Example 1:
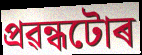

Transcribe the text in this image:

প্ৰৱন্ধটোৰ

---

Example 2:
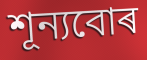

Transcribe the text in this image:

শূন্যবোৰ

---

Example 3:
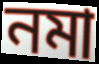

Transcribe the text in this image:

নমা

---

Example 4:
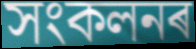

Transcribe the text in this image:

সংকলনৰ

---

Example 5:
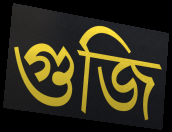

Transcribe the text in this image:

গুজি